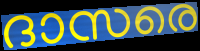
ദാസരെ